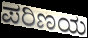
ಪರಿಣಯ